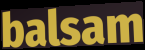
balsam